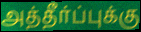
அத்தீர்ப்புக்கு